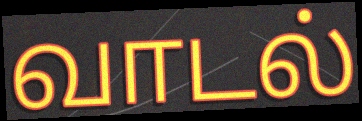
வாடல்